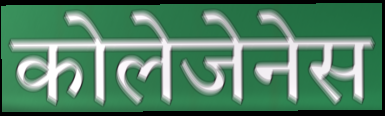
कोलेजेनेस